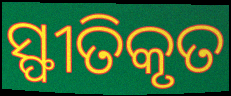
ସ୍ଫୀତିକୃତ